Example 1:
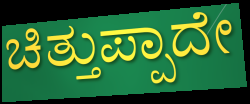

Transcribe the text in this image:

ಚಿತ್ತುಪ್ಪಾದೇ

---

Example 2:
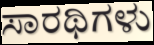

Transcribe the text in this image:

ಸಾರಥಿಗಳು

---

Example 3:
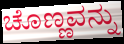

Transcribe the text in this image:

ಚೊಣ್ಣವನ್ನು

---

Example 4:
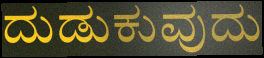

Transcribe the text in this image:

ದುಡುಕುವುದು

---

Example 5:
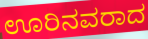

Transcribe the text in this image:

ಊರಿನವರಾದ